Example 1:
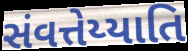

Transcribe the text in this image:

સંવત્તેય્યાતિ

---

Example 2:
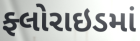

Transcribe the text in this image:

ફ્લોરાઇડમાં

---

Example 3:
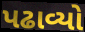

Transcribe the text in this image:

પઢાવ્યો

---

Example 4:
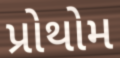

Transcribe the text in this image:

પ્રોથોમ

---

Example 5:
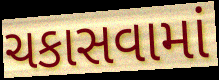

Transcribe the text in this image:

ચકાસવામાં